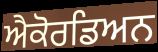
ਐਕੋਰਡਿਅਨ